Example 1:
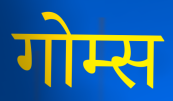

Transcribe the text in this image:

गोम्स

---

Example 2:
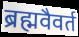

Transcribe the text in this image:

ब्रह्मवैवर्त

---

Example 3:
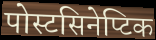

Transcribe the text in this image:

पोस्टसिनेप्टिक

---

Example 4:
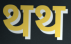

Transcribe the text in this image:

थथ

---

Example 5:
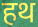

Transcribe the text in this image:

हथ